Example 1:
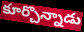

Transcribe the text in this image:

కూర్చొన్నాడు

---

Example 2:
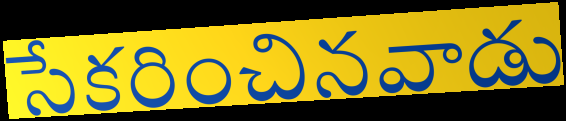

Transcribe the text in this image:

సేకరించినవాడు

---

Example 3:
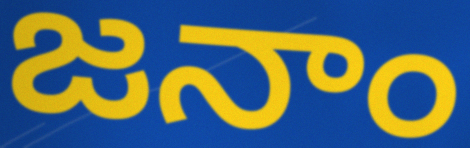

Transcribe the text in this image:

జనాం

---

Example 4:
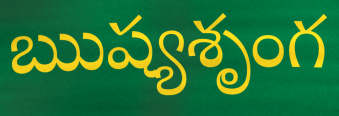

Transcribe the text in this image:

ఋష్యశృంగ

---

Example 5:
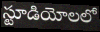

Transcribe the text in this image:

స్టూడియోలలో